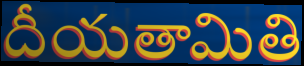
దీయతామితి